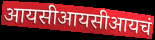
आयसीआयसीआयचं